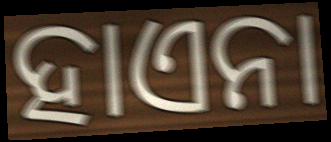
ହାଏନା